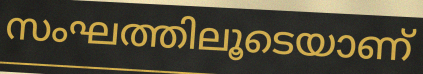
സംഘത്തിലൂടെയാണ്